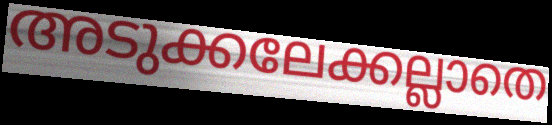
അടുക്കലേക്കല്ലാതെ